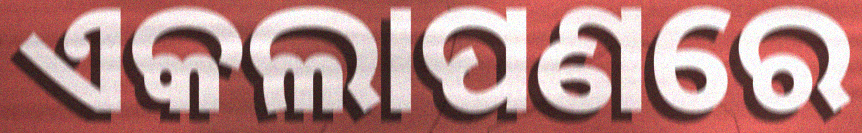
ଏକଲାପଣରେ